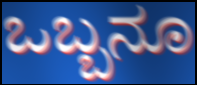
ಒಬ್ಬನೂ